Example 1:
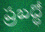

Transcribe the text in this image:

ప్రబద్ధో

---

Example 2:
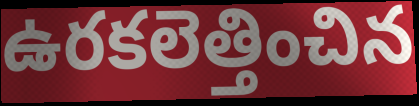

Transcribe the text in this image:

ఉరకలెత్తించిన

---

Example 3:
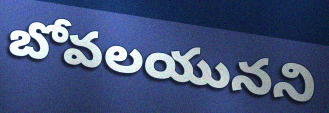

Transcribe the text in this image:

బోవలయునని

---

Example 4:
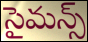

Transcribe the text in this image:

సైమన్స్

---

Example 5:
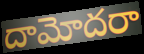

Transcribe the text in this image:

దామోదరా